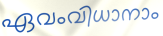
ഏവംവിധാനാം